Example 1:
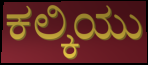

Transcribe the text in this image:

ಕಲ್ಕಿಯು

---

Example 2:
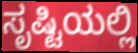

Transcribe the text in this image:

ಸೃಷ್ಟಿಯಲ್ಲಿ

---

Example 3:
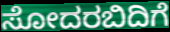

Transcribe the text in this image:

ಸೋದರಬಿದಿಗೆ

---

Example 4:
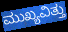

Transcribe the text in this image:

ಮುಖ್ಯವಿತ್ತು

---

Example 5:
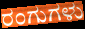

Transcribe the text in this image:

ರಂಗುಗಳು